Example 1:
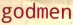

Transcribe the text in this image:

godmen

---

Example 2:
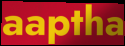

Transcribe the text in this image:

aaptha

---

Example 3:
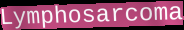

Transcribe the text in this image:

Lymphosarcoma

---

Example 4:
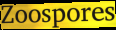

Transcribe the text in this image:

Zoospores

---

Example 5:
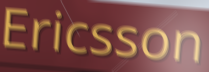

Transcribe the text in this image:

Ericsson